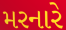
મરનારે